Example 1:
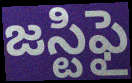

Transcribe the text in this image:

జస్టిఫై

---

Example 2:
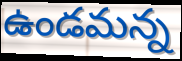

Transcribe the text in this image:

ఉండమన్న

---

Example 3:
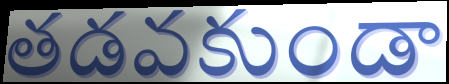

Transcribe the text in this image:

తడవకుండా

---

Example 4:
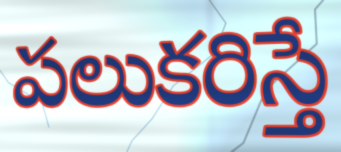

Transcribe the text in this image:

పలుకరిస్తే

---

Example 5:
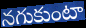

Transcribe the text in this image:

నగుకుంటా